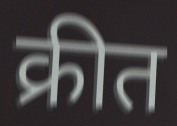
क्रीत